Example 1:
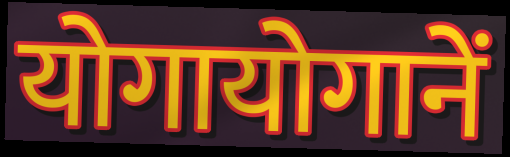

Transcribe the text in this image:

योगायोगानें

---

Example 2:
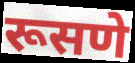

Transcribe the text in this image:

रूसणे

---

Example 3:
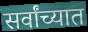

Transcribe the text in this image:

सर्वांच्यात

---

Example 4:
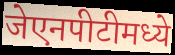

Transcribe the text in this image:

जेएनपीटीमध्ये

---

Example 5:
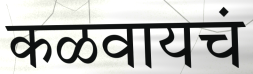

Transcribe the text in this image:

कळवायचं